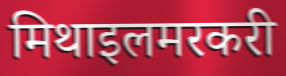
मिथाइलमरकरी